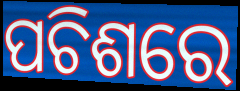
ପଚିଶରେ